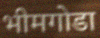
भीमगोडा